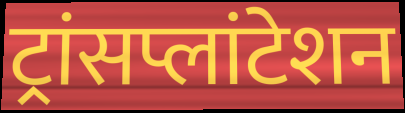
ट्रांसप्लांटेशन